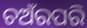
ଚଅଁରପରି